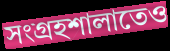
সংগ্রহশালাতেও